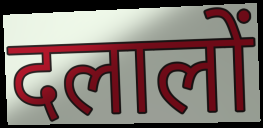
दलालों